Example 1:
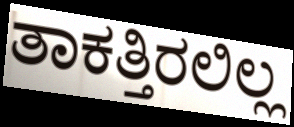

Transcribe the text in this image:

ತಾಕತ್ತಿರಲಿಲ್ಲ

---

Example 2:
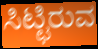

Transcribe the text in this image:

ಸಿಟ್ಟಿರುವ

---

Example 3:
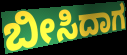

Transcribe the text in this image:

ಬೀಸಿದಾಗ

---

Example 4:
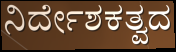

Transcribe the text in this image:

ನಿರ್ದೇಶಕತ್ವದ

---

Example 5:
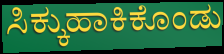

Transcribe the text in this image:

ಸಿಕ್ಕುಹಾಕಿಕೊಂಡು